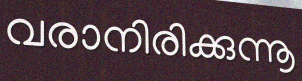
വരാനിരിക്കുന്നൂ